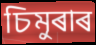
চিমুৰাৰ